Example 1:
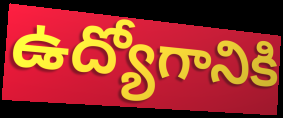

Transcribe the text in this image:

ఉద్యోగానికి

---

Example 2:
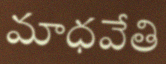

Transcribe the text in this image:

మాధవేతి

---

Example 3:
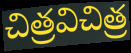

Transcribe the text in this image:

చిత్రవిచిత్ర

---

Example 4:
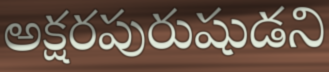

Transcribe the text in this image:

అక్షరపురుషుడని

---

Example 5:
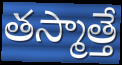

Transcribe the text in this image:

తస్మాత్తే